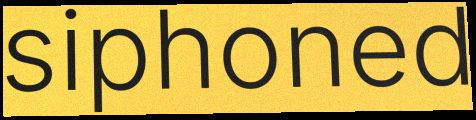
siphoned